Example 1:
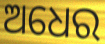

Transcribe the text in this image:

ଅଧେର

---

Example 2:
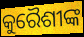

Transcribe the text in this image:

କୁରୈଶୀଙ୍କ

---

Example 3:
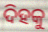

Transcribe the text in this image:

ଦିହକୁ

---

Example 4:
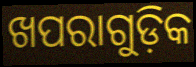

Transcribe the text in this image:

ଖପରାଗୁଡ଼ିକ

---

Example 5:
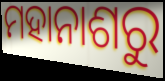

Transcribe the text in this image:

ମହାନାଶରୁ